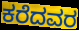
ಕರೆದವರ